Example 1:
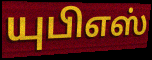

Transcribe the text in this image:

யுபிஎஸ்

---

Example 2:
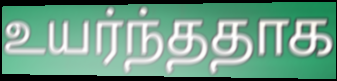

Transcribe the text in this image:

உயர்ந்ததாக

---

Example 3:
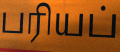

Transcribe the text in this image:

பரியப்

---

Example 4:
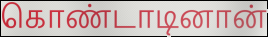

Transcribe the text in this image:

கொண்டாடினான்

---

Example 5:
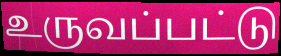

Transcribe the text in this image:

உருவப்பட்டு